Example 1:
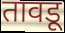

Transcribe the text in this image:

तावडू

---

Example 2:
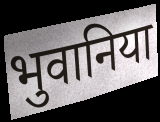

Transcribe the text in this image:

भुवानिया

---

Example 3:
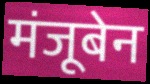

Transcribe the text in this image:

मंजूबेन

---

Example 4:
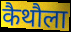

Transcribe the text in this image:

कैथौला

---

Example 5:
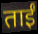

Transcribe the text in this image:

ताईं